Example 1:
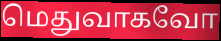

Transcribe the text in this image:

மெதுவாகவோ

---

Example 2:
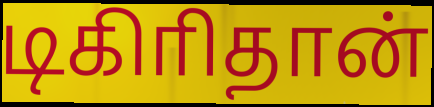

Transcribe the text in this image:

டிகிரிதான்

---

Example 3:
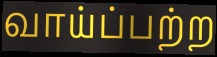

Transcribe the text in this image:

வாய்ப்பற்ற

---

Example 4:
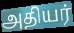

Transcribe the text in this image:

அதியர்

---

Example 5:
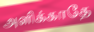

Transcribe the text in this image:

அளிக்காதே